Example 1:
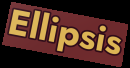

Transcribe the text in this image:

Ellipsis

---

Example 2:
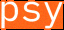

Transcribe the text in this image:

psy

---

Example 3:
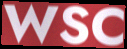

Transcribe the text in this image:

WSC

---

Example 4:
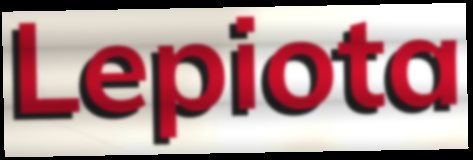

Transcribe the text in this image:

Lepiota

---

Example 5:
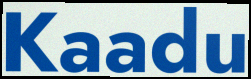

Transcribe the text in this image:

Kaadu